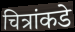
चित्रांकडे